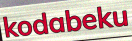
kodabeku